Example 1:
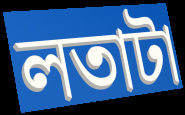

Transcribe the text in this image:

লতাটা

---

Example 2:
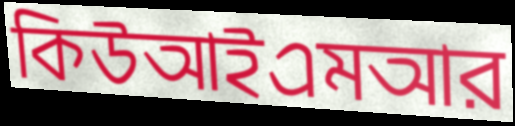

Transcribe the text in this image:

কিউআইএমআর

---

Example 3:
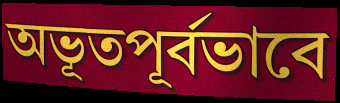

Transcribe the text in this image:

অভূতপূর্বভাবে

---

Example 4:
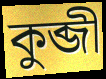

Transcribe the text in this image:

কুব্জী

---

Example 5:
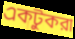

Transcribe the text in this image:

একটুকরা